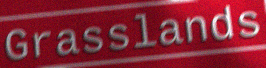
Grasslands